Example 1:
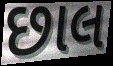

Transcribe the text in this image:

છાલ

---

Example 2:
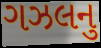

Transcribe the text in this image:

ગઝલનુ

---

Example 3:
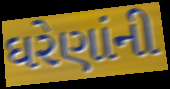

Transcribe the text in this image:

ઘરેણાંની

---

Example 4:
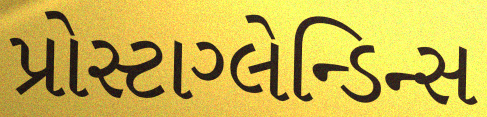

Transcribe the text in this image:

પ્રોસ્ટાગ્લેન્ડિન્સ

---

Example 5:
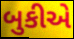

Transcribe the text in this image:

બુકીએ